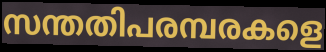
സന്തതിപരമ്പരകളെ